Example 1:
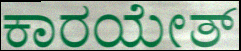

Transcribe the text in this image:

ಕಾರಯೇತ್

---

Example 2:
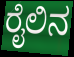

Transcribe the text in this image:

ರೈಲಿನ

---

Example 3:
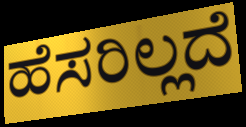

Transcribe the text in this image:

ಹೆಸರಿಲ್ಲದೆ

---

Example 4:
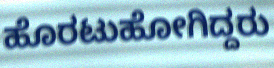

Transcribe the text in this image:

ಹೊರಟುಹೋಗಿದ್ದರು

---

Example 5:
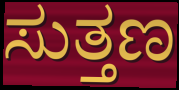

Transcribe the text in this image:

ಸುತ್ತಣ